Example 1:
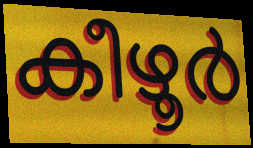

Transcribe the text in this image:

കീഴൂർ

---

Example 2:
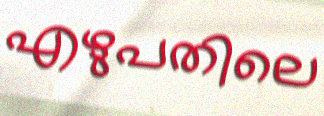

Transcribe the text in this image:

എഴുപതിലെ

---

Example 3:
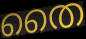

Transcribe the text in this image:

തൈ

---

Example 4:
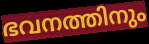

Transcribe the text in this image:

ഭവനത്തിനും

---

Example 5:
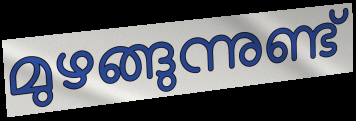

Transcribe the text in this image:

മുഴങ്ങുന്നുണ്ട്